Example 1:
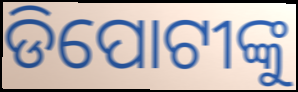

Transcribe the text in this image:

ଡିପୋଟୀଙ୍କୁ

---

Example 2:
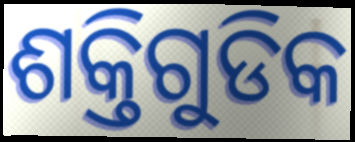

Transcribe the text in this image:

ଶକ୍ତିଗୁଡିକ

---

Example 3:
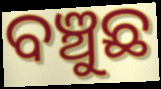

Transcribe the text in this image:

ବଞ୍ଚୁଛ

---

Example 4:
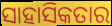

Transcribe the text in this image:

ସାହାସିକତାର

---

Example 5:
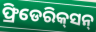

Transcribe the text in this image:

ଫ୍ରିଡେରିକ୍‌ସନ୍